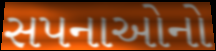
સપનાઓનો